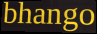
bhango